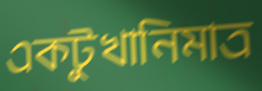
একটুখানিমাত্র